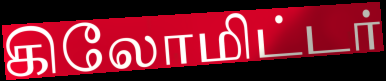
கிலோமிட்டர்